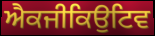
ਐਕਜੀਕਿਉਟਿਵ